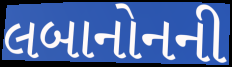
લબાનોનની